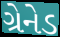
ગ્રેનેડ